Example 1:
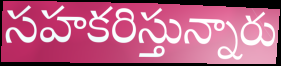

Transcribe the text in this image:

సహకరిస్తున్నారు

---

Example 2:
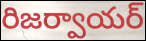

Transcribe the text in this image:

రిజర్వాయర్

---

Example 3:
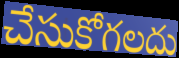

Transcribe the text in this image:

చేసుకోగలదు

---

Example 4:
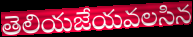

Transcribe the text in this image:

తెలియజేయవలసిన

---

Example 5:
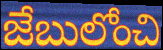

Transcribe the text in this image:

జేబులోంచి